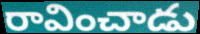
రావించాడు